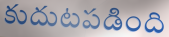
కుదుటపడింది